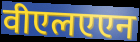
वीएलएएन